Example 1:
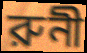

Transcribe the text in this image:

রুনী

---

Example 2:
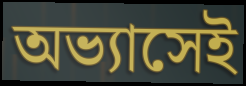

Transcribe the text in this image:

অভ্যাসেই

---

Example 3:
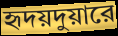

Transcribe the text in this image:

হৃদয়দুয়ারে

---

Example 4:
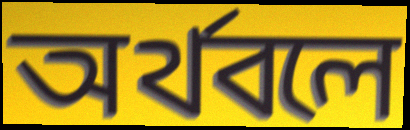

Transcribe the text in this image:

অর্থবলে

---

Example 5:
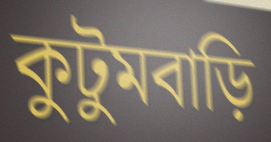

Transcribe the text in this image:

কুটুমবাড়ি